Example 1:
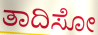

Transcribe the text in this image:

ತಾದಿಸೋ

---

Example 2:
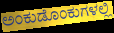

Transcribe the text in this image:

ಅಂಕುಡೊಂಕುಗಳಲ್ಲಿ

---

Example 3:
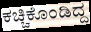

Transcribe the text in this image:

ಕಚ್ಚಿಕೊಂಡಿದ್ದ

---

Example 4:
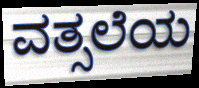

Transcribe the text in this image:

ವತ್ಸಲೆಯ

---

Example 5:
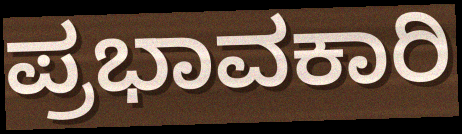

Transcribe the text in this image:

ಪ್ರಭಾವಕಾರಿ